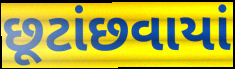
છૂટાંછવાયાં